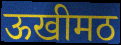
ऊखीमठ